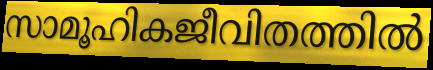
സാമൂഹികജീവിതത്തിൽ